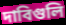
দাবিগুলি